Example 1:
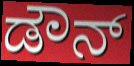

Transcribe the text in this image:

ಡೌನ್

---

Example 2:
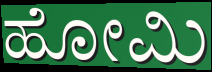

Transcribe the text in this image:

ಹೋಮಿ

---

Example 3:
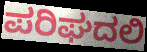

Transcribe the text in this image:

ಪರಿಘದಲಿ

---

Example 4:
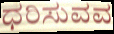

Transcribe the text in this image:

ಧರಿಸುವವ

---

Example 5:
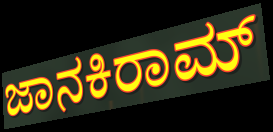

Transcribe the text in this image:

ಜಾನಕಿರಾಮ್